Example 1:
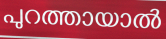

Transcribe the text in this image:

പുറത്തായാൽ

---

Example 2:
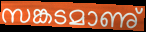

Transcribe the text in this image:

സങ്കടമാണു്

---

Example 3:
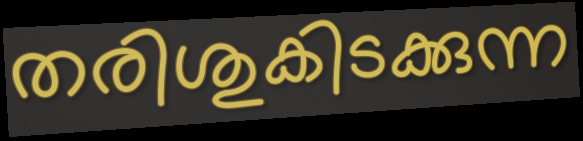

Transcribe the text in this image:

തരിശുകിടക്കുന്ന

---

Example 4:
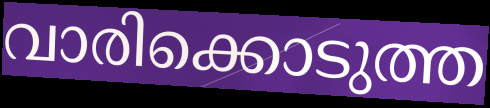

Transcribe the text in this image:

വാരിക്കൊടുത്ത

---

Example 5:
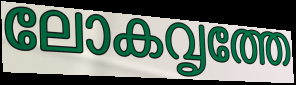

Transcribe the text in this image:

ലോകവൃത്തേ